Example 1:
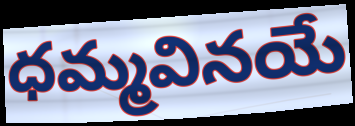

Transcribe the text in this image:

ధమ్మవినయే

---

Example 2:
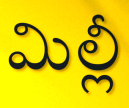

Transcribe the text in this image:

మిల్లీ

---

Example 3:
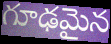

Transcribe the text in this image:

గూఢమైన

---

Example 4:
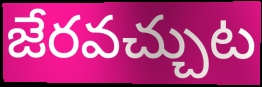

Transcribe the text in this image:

జేరవచ్చుట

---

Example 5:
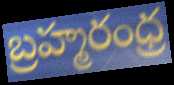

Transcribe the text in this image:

బ్రహ్మరంధ్ర